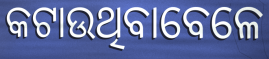
କଟାଉଥିବାବେଳେ